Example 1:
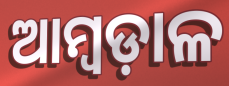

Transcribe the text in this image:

ଆମ୍ବଡ଼ାଳ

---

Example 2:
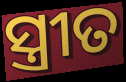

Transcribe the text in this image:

ସ୍ତ୍ରୀତ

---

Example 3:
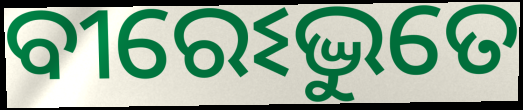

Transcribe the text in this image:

ବୀରେଽଦ୍ଭୁତେ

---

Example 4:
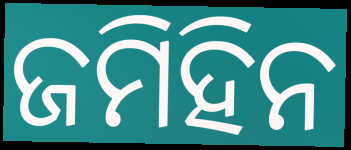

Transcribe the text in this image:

ଜମିହିନ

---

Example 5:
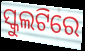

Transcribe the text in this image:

ସ୍କୁଲଟିରେ